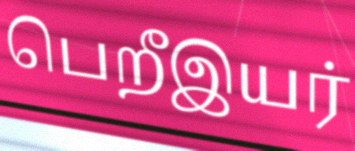
பெறீஇயர்